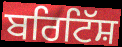
ਬਰਿਟਿੱਸ਼